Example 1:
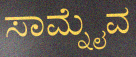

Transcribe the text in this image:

ಸಾಮ್ನೈವ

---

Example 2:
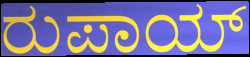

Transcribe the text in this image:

ರುಪಾಯ್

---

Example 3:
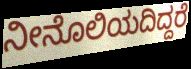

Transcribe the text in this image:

ನೀನೊಲಿಯದಿದ್ದರೆ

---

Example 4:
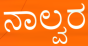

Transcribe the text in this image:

ನಾಲ್ವರ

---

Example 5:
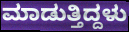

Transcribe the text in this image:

ಮಾಡುತ್ತಿದ್ದಳು